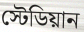
স্টেডিয়ান